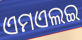
ଏମଏଲଇ